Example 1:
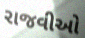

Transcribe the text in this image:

રાજવીઓ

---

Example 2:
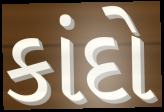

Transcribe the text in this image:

કાંદો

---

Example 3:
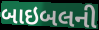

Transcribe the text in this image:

બાઇબલની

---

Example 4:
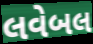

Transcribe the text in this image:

લવેબલ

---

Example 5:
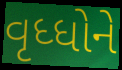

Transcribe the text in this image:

વૃધ્ધોને